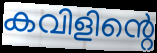
കവിളിന്റെ